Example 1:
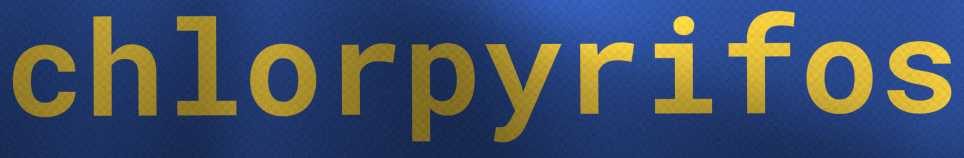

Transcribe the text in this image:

chlorpyrifos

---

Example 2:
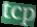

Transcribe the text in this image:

tcp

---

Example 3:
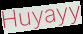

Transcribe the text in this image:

Huyayy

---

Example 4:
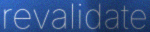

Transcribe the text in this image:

revalidate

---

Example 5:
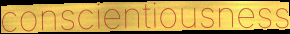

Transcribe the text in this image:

conscientiousness